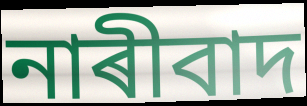
নাৰীবাদ